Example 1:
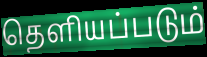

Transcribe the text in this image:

தெளியப்படும்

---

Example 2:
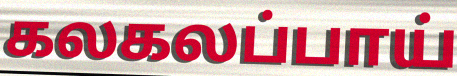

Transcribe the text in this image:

கலகலப்பாய்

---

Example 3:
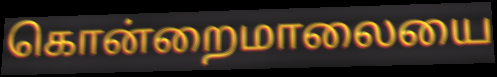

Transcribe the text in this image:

கொன்றைமாலையை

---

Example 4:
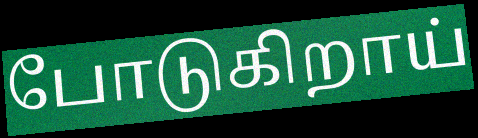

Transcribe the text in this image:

போடுகிறாய்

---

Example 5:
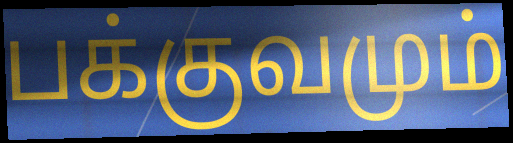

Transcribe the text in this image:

பக்குவமும்